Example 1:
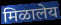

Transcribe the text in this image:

मिळालेय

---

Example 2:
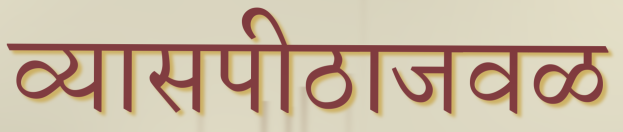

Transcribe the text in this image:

व्यासपीठाजवळ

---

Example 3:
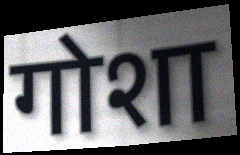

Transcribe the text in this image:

गोशा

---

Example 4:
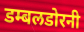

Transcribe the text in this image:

डम्बलडोरनी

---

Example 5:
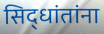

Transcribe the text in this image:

सिद्धांतांना